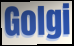
Golgi